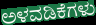
ಅಳವಡಿಕೆಗಳು